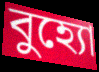
বুহ্যো